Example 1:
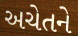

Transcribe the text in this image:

અચેતને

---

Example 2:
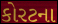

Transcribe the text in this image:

કોરટના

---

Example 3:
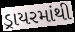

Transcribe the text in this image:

ડ્રાયરમાંથી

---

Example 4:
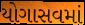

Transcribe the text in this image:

યોગાસવમાં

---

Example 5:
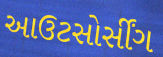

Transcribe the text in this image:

આઉટસોર્સીંગ